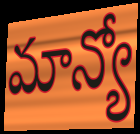
మాన్యో